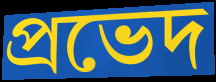
প্ৰভেদ